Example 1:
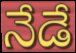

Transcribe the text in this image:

నేడే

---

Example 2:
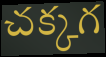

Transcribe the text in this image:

చక్కగ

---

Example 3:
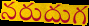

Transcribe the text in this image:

నరుదుగ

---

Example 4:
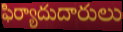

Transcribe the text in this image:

ఫిర్యాదుదారులు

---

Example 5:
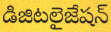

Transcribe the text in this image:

డిజిటలైజేషన్